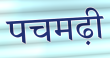
पचमढ़ी